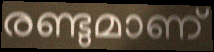
രണ്ടുമാണ്